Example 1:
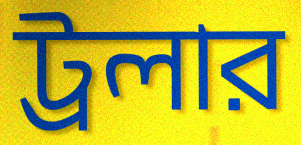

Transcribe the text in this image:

ট্রলার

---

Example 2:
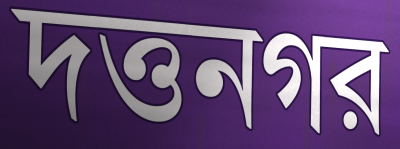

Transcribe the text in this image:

দত্তনগর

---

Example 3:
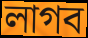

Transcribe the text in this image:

লাগব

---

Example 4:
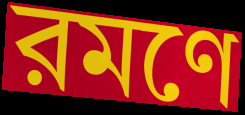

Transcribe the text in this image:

রমণে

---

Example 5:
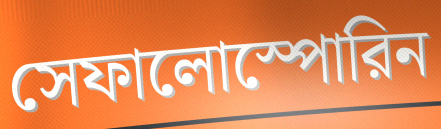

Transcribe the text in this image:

সেফালোস্পোরিন